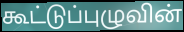
கூட்டுப்புழுவின்